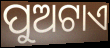
ପୁଅଟାଏ